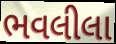
ભવલીલા